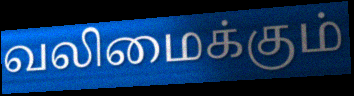
வலிமைக்கும்